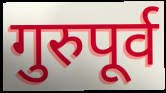
गुरुपूर्व